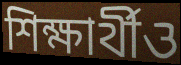
শিক্ষার্থীও